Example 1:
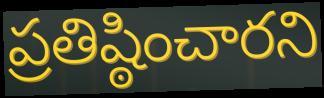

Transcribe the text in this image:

ప్రతిష్ఠించారని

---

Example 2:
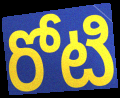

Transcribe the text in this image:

రోటి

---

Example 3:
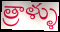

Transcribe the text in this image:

త్రాళ్ళు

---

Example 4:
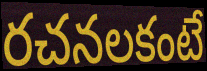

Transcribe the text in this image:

రచనలకంటే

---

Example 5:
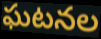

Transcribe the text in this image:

ఘటనల